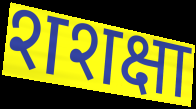
शशक्षा